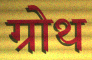
ग्रोथ